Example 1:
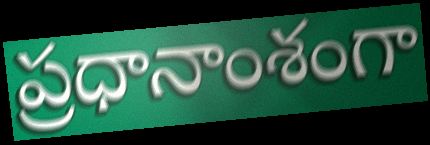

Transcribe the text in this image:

ప్రధానాంశంగా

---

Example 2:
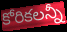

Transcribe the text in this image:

కోరికలన్నీ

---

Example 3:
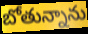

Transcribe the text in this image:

బోతున్నాను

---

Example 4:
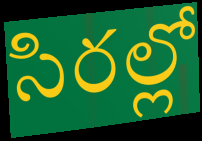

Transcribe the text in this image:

సిరల్లో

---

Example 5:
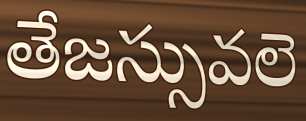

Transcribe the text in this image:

తేజస్సువలె